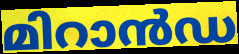
മിറാൻഡ